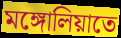
মঙ্গোলিয়াতে